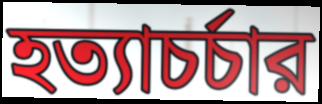
হত্যাচর্চার